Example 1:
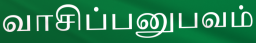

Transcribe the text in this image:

வாசிப்பனுபவம்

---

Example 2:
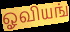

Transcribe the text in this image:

ஓவியங்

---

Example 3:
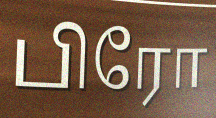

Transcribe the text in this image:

பிரோ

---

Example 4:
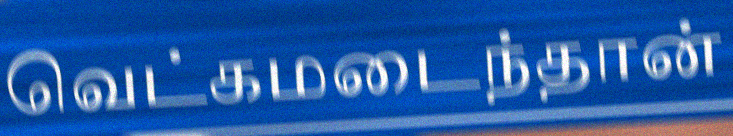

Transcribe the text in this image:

வெட்கமடைந்தான்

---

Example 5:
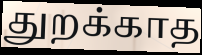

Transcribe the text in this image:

துறக்காத